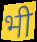
भी